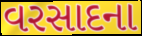
વરસાદના